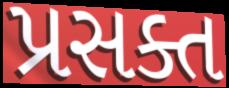
પ્રસક્ત